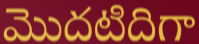
మొదటిదిగా